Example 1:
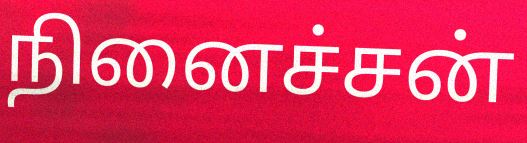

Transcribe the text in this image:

நினைச்சன்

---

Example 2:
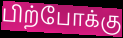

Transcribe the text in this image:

பிற்போக்கு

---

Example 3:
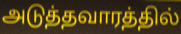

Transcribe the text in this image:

அடுத்தவாரத்தில்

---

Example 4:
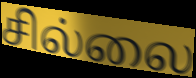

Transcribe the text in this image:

சில்லை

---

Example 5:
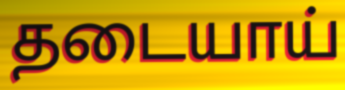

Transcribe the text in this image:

தடையாய்